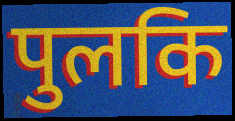
पुलकि